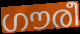
ഗൗരീ